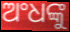
ଅଂଧଙ୍କୁ